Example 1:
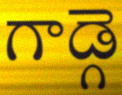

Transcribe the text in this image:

గాడ్గె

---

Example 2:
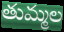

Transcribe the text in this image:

తుమ్మల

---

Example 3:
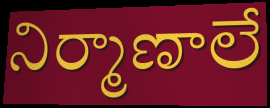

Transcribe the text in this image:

నిర్మాణాలే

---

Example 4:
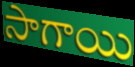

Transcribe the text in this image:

సాగాయి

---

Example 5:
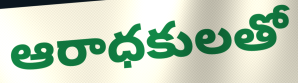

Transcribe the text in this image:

ఆరాధకులతో